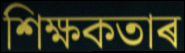
শিক্ষকতাৰ